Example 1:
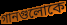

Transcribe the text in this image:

গানগুলোকে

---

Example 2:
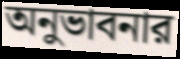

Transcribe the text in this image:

অনুভাবনার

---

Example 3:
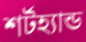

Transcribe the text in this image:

শর্টহ্যান্ড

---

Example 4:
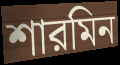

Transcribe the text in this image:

শারমিন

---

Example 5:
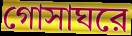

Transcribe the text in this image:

গোসাঘরে